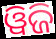
ୱିଜି